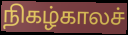
நிகழ்காலச்